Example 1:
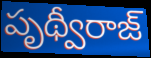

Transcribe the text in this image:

పృథ్వీరాజ్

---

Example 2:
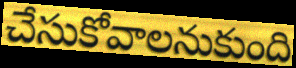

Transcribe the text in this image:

చేసుకోవాలనుకుంది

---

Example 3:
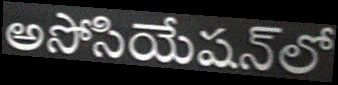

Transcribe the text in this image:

అసోసియేషన్‌లో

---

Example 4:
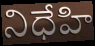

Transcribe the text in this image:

నిధేహి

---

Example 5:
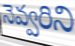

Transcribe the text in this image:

నెవ్వరిని